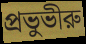
প্রভুভীরু